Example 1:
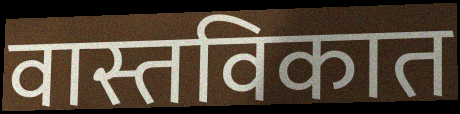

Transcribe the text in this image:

वास्तविकात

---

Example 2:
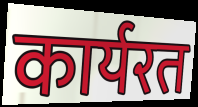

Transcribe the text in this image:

कार्यरत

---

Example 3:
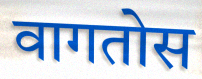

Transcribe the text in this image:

वागतोस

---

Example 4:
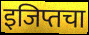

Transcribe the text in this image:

इजिप्तचा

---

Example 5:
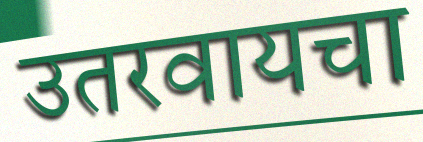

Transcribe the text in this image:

उतरवायचा